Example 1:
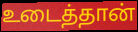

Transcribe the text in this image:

உடைத்தான்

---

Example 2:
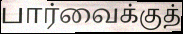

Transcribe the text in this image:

பார்வைக்குத்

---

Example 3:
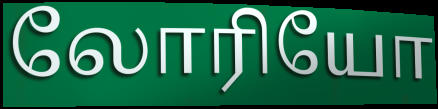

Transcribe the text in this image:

லோரியோ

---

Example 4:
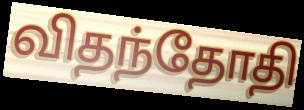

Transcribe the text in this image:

விதந்தோதி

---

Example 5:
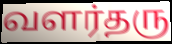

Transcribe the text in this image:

வளர்தரு